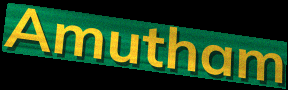
Amutham